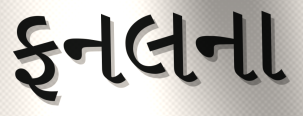
ફનલના